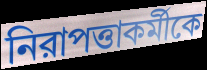
নিরাপত্তাকর্মীকে